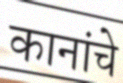
कानांचे